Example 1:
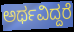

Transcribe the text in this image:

ಅರ್ಥವಿದ್ದರೆ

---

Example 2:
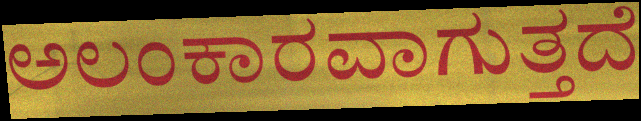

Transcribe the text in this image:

ಅಲಂಕಾರವಾಗುತ್ತದೆ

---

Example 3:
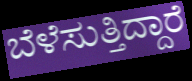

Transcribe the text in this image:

ಬೆಳೆಸುತ್ತಿದ್ದಾರೆ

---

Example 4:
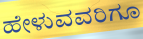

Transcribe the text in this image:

ಹೇಳುವವರಿಗೂ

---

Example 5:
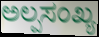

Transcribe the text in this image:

ಅಲ್ಪಸಂಖ್ಯ